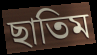
ছাতিম